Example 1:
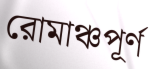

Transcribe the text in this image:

রোমাঞ্চপূর্ণ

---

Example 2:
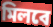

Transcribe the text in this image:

মিলবে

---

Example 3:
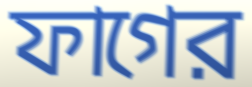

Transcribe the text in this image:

ফাগের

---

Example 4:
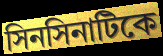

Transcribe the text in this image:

সিনসিনাটিকে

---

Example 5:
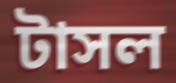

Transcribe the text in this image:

টাসল